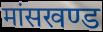
मांसखण्ड